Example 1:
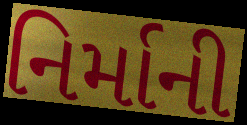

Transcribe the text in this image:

નિર્માની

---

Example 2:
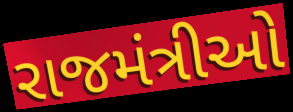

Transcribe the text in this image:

રાજમંત્રીઓ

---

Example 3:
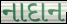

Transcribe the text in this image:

નાદાન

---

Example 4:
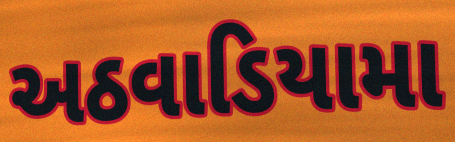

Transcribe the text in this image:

અઠવાડિયામા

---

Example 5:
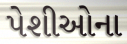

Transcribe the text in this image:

પેશીઓના